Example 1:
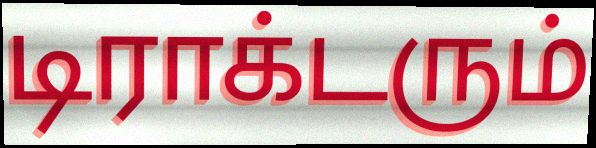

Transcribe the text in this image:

டிராக்டரும்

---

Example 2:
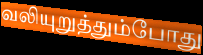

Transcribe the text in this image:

வலியுறுத்தும்போது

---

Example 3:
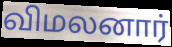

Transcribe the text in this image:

விமலனார்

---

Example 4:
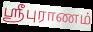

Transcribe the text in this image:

ஸ்ரீபுராணம்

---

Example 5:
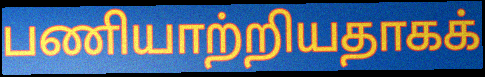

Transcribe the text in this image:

பணியாற்றியதாகக்